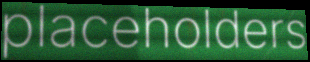
placeholders